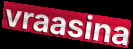
vraasina